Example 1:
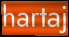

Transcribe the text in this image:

hartaj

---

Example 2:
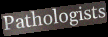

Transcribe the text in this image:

Pathologists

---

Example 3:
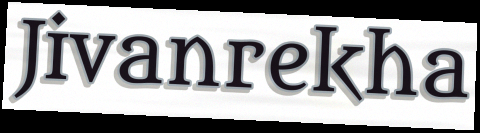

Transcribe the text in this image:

Jivanrekha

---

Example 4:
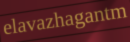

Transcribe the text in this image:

elavazhagantm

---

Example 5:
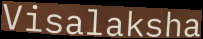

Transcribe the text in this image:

Visalaksha